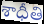
శాధీతి